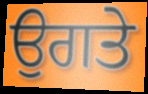
ਉਗਤੇ